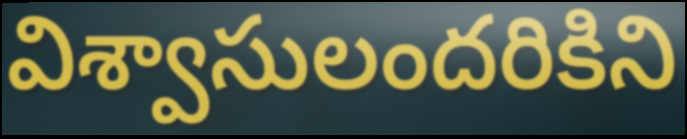
విశ్వాసులందరికిని